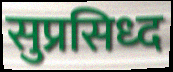
सुप्रसिध्द